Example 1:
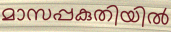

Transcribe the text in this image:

മാസപ്പകുതിയിൽ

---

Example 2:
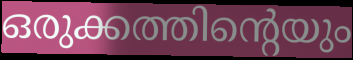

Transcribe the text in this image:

ഒരുക്കത്തിന്റെയും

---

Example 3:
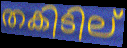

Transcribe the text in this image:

തകിടില്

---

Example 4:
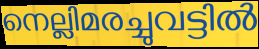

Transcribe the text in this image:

നെല്ലിമരച്ചുവട്ടിൽ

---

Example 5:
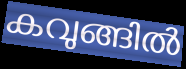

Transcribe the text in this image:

കവുങ്ങിൽ